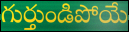
గుర్తుండిపోయే